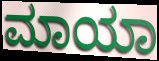
ಮಾಯಾ